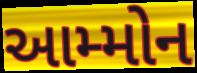
આમ્મોન